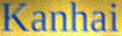
Kanhai